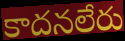
కాదనలేరు